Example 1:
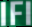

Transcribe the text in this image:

IFI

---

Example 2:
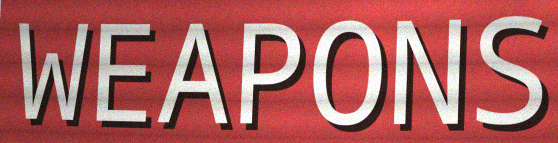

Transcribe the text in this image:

WEAPONS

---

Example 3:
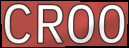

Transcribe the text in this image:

CROO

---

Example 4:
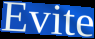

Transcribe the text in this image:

Evite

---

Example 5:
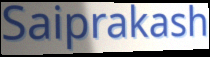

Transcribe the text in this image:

Saiprakash